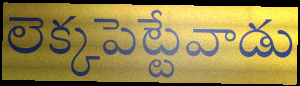
లెక్కపెట్టేవాడు